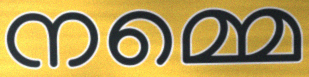
നമ്മെ